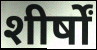
शीर्षों